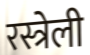
रस्त्रेली